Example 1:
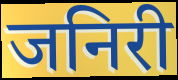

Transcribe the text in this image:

जनिरी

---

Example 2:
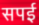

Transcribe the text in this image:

सपई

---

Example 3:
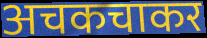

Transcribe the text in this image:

अचकचाकर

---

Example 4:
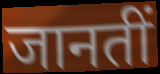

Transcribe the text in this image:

जानतीं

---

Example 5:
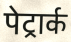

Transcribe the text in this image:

पेट्रार्क